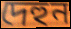
দেহুন